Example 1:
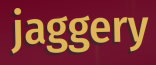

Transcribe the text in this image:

jaggery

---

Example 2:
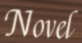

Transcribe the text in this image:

Novel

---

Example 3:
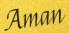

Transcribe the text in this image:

Aman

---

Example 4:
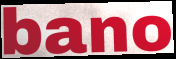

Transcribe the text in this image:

bano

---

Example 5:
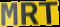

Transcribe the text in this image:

MRT